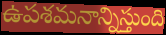
ఉపశమనాన్నిస్తుంది